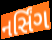
નર્સિંગ